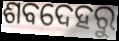
ଶବଦେହରୁ